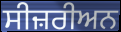
ਸੀਜ਼ਰੀਅਨ